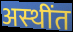
अस्थींत